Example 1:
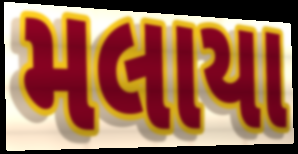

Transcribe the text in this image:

મલાયા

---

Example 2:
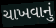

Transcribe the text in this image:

ચાખવાનું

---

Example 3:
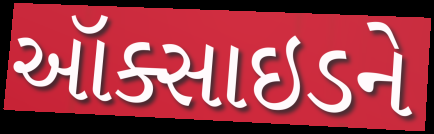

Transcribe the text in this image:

ઑક્સાઇડને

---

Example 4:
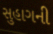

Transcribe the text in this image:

સુહાગની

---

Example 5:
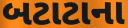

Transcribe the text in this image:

બટાટાના